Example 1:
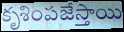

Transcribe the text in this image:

కృశింపజేస్తాయి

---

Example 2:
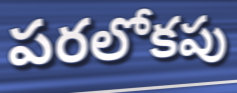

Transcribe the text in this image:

పరలోకపు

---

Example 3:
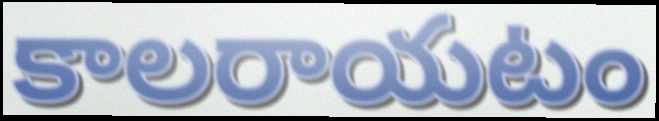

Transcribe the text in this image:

కాలరాయటం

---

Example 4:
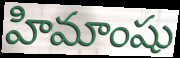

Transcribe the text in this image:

హిమాంషు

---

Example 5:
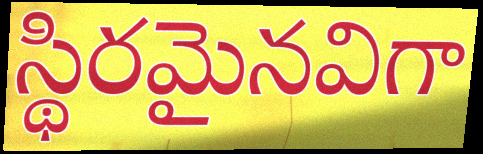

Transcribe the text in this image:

స్థిరమైనవిగా